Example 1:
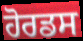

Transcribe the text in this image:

ਹੋਰਡਸ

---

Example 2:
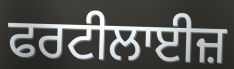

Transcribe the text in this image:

ਫਰਟੀਲਾਈਜ਼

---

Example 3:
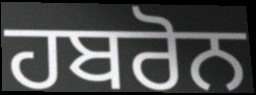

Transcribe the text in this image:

ਹਬਰੋਨ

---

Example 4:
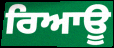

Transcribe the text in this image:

ਰਿਆਊ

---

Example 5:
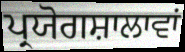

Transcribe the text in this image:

ਪ੍ਰਯੋਗਸ਼ਾਲਾਵਾਂ